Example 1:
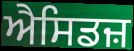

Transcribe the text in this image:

ਐਸਿਡਜ਼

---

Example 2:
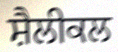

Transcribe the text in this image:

ਸ਼ੈਲੀਕਲ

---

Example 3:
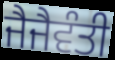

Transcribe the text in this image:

ਜੈਜੈਵੰਤੀ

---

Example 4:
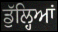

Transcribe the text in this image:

ਡੁੱਲ੍ਹਿਆਂ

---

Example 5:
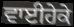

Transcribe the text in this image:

ਵਾਈਹੇਕੇ